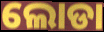
ଲୋଡା